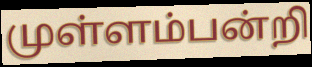
முள்ளம்பன்றி